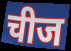
चीज